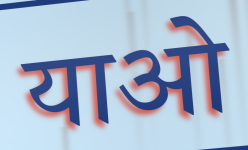
याओ